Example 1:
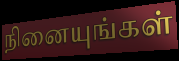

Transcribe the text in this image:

நினையுங்கள்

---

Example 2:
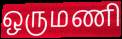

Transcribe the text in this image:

ஒருமணி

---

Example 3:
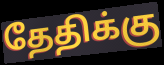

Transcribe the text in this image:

தேதிக்கு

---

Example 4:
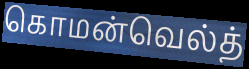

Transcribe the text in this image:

கொமன்வெல்த்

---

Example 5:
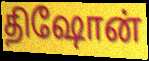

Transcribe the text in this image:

திஷோன்